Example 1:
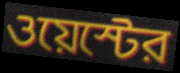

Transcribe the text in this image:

ওয়েস্টের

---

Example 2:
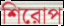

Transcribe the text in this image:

শিরোপ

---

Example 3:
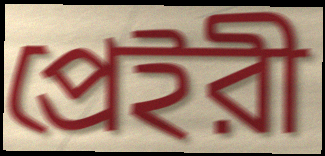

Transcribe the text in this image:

প্রেইরী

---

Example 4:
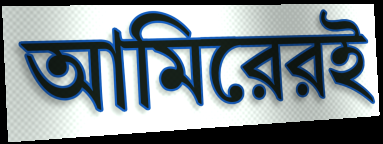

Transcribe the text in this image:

আমিরেরই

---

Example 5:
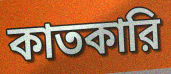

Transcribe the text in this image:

কাতকারি